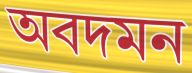
অবদমন